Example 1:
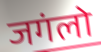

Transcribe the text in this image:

जगंलो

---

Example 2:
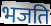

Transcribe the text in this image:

भजति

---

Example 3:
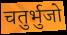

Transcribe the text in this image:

चतुर्भुजो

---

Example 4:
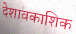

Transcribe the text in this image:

देशावकाशिक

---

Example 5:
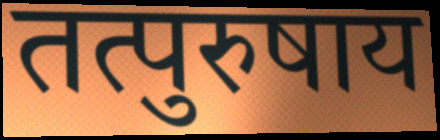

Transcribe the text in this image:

तत्पुरुषाय